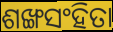
ଶଙ୍ଖସଂହିତା